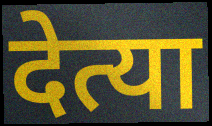
देत्या